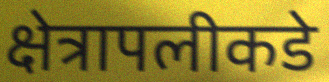
क्षेत्रापलीकडे